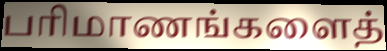
பரிமாணங்களைத்